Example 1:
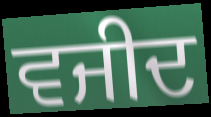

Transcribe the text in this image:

ਵਜੀਦ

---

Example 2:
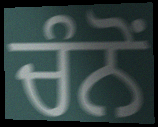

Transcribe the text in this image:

ਚੰਨੋਂ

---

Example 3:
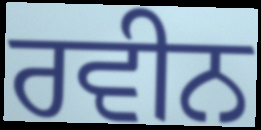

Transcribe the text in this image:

ਰਵੀਨ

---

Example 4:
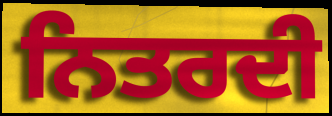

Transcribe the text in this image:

ਨਿਤਰਦੀ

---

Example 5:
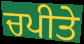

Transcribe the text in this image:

ਚਪੀਤੇ